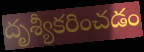
దృశ్యీకరించడం